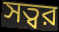
সত্বর